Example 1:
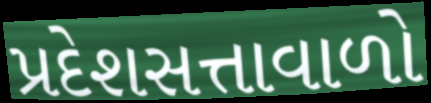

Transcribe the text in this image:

પ્રદેશસત્તાવાળો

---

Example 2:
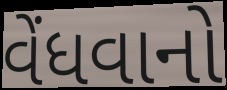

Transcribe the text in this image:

વેંધવાનો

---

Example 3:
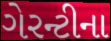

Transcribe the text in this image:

ગેરન્ટીના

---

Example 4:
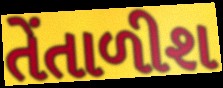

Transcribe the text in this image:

તેંતાળીશ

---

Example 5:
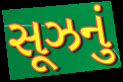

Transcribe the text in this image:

સૂઝનું